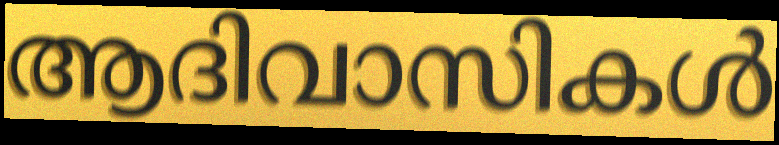
ആദിവാസികൾ